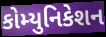
કોમ્યુનિકેશન